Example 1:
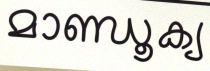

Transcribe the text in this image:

മാണ്ഡൂക്യ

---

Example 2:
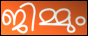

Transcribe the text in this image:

ജിമ്മും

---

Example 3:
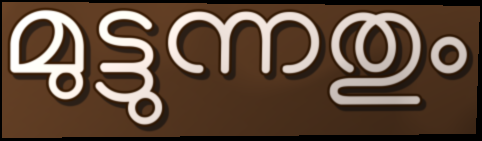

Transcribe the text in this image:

മുട്ടുന്നതും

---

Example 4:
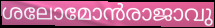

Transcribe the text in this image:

ശലോമോൻരാജാവു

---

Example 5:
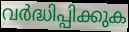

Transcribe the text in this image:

വർദ്ധിപ്പിക്കുക